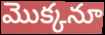
మొక్కనూ